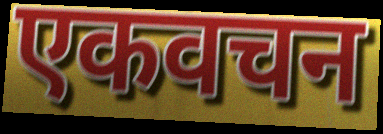
एकवचन